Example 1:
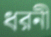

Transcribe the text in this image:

ধরনী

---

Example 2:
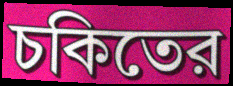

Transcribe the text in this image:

চকিতের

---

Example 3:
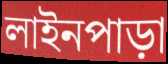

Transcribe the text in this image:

লাইনপাড়া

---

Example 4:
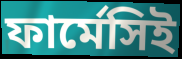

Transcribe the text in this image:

ফার্মেসিই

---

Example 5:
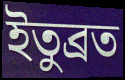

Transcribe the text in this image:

ইতুব্রত